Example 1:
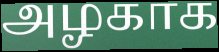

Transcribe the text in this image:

அழகாக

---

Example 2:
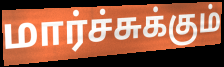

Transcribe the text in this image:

மார்ச்சுக்கும்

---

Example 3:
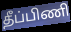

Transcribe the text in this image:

தீப்பிணி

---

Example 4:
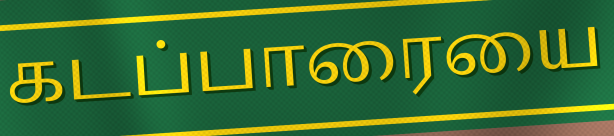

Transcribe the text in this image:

கடப்பாரையை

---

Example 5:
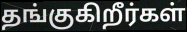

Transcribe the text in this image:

தங்குகிறீர்கள்